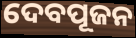
ଦେବପୂଜନ